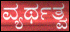
ವ್ಯರ್ಥತ್ವ